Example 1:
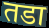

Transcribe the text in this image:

तडा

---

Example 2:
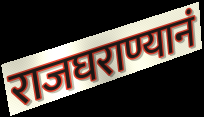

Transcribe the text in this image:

राजघराण्यानं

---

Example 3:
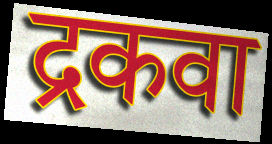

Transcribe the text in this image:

द्रकवा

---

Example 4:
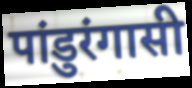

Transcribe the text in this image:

पांडुरंगासी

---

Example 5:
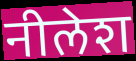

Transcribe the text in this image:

नीलेश